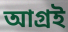
আগ্রই